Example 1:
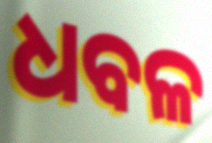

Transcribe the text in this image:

ଧବଳ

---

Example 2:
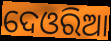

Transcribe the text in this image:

ଦେଓରିଆ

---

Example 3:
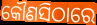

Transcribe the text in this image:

କୌଣସିଠାରେ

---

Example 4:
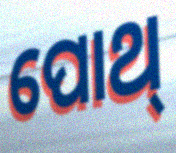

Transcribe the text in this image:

ପୋଥ୍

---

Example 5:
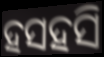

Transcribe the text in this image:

ହସହସି